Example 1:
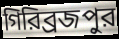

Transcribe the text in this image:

গিরিব্রজপুর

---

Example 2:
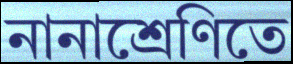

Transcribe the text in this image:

নানাশ্রেণিতে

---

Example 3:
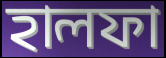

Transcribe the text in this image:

হালফা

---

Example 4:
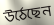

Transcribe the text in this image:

উঠেছেন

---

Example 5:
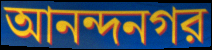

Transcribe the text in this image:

আনন্দনগর